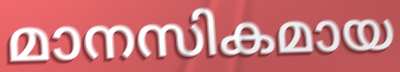
മാനസികമായ